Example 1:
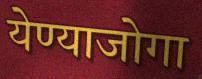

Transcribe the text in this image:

येण्याजोगा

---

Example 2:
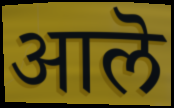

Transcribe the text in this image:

आलॆ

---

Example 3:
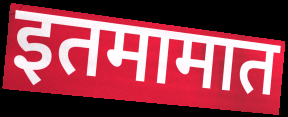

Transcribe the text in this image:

इतमामात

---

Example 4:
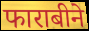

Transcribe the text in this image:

फाराबीने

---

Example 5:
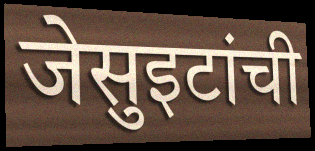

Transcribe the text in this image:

जेसुइटांची